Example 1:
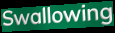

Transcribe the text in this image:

Swallowing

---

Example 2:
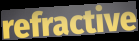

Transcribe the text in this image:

refractive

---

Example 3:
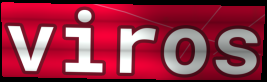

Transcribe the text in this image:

viros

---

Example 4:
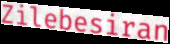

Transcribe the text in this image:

Zilebesiran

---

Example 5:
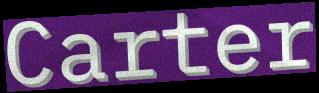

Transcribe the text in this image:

Carter